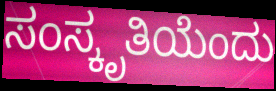
ಸಂಸ್ಕೃತಿಯೆಂದು